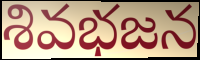
శివభజన